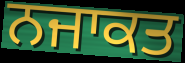
ਨਜਾਕਤ